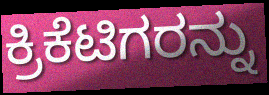
ಕ್ರಿಕೆಟಿಗರನ್ನು